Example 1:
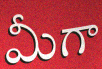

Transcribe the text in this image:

మీగా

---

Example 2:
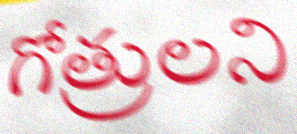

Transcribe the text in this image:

గోత్రులని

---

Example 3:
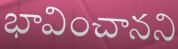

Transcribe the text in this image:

భావించానని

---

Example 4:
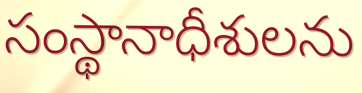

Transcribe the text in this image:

సంస్థానాధీశులను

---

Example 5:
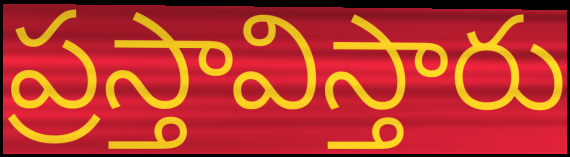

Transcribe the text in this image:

ప్రస్తావిస్తారు